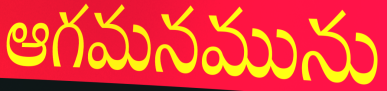
ఆగమనమును